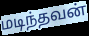
மடிந்தவன்